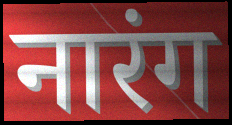
नारंग